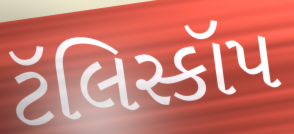
ટૅલિસ્કૉપ